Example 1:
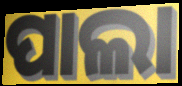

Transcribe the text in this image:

ପାଲା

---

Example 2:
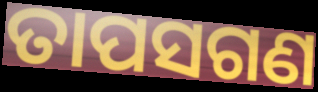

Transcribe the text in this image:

ତାପସଗଣ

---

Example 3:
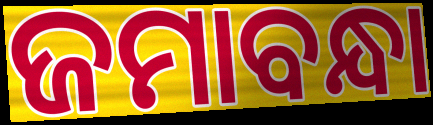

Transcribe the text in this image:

ଜମାବନ୍ଧା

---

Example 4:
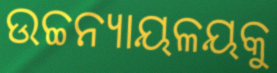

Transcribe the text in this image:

ଉଚ୍ଚନ୍ୟାୟଳୟକୁ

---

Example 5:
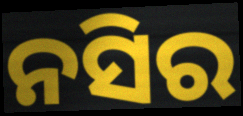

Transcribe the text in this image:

ନସିର